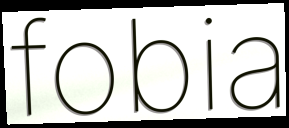
fobia